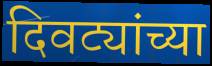
दिवट्यांच्या